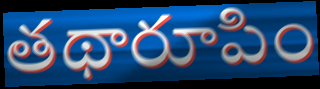
తథారూపిం